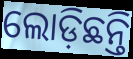
ଲୋଡ଼ିଛନ୍ତି